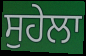
ਸੁਹੇਲਾ